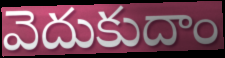
వెదుకుదాం